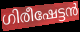
ഗിരീഷേട്ടൻ